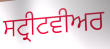
ਸਟ੍ਰੀਟਵੀਅਰ